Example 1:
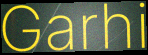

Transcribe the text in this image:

Garhi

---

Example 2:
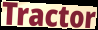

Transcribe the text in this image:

Tractor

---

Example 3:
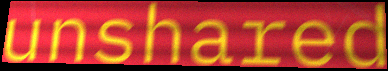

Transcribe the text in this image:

unshared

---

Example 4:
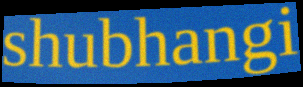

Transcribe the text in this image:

shubhangi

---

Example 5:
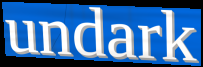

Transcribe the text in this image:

undark